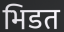
भिडत